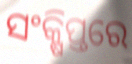
ସଂକ୍ଷିପ୍ତରେ